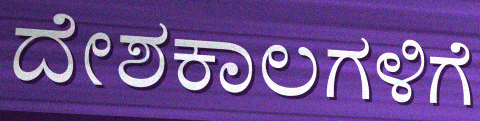
ದೇಶಕಾಲಗಳಿಗೆ